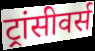
ट्रांसीवर्स